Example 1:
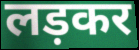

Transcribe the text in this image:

लड़कर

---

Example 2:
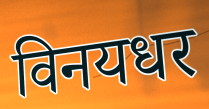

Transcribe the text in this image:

विनयधर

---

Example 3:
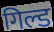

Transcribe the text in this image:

गिल्ड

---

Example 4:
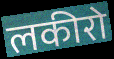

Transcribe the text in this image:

लकीरो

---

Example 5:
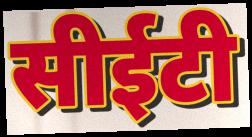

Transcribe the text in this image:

सीईटी